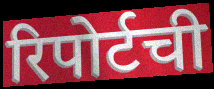
रिपोर्टची